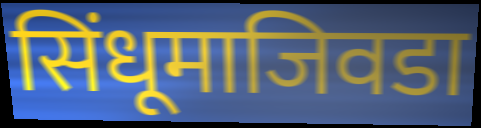
सिंधूमाजिवडा